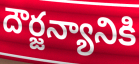
దౌర్జన్యానికి